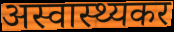
अस्वास्थ्यकर